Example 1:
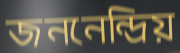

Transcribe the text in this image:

জননেন্দ্রিয়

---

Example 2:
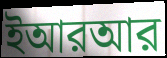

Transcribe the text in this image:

ইআরআর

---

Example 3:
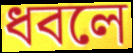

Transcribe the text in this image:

ধবলে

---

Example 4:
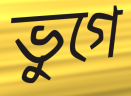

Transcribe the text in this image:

ভুগে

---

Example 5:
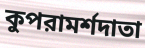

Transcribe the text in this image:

কুপরামর্শদাতা